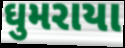
ઘુમરાયા